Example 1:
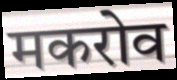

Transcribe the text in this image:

मकरोव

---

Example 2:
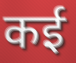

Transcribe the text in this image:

कई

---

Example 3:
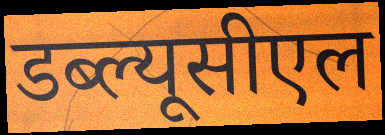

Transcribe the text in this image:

डब्ल्यूसीएल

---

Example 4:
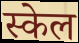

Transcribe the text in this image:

स्केल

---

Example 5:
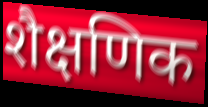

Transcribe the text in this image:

शैक्षणिक